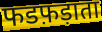
फडफ़ड़ाता